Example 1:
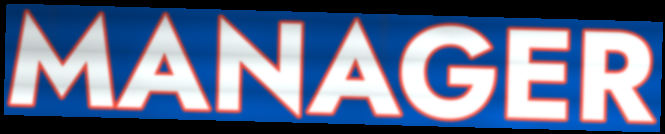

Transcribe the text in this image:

MANAGER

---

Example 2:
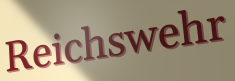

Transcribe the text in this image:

Reichswehr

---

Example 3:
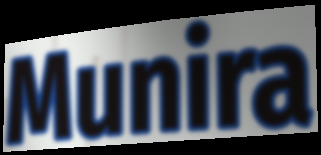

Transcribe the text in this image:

Munira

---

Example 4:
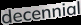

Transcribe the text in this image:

decennial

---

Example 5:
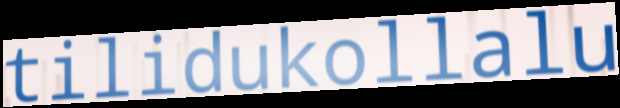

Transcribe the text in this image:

tilidukollalu